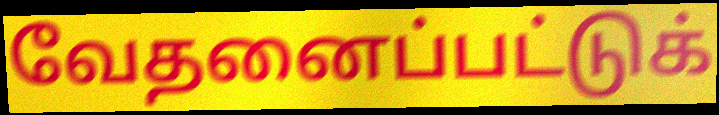
வேதனைப்பட்டுக்